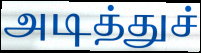
அடித்துச்